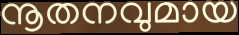
നൂതനവുമായ